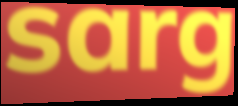
sarg